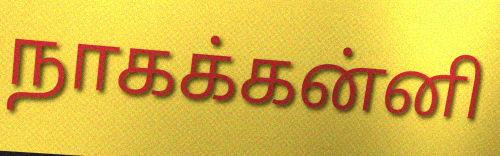
நாகக்கன்னி